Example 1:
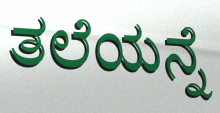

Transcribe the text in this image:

ತಲೆಯನ್ನೆ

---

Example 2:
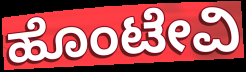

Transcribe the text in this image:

ಹೊಂಟೇವಿ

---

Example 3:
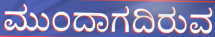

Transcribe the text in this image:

ಮುಂದಾಗದಿರುವ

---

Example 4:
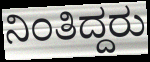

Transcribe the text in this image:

ನಿಂತಿದ್ದರು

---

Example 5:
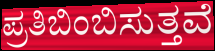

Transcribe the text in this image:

ಪ್ರತಿಬಿಂಬಿಸುತ್ತವೆ